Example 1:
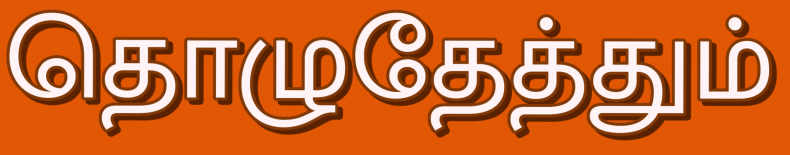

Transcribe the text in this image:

தொழுதேத்தும்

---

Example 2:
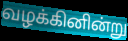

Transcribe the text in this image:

வழக்கினின்று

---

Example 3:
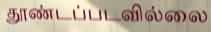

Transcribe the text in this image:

தூண்டப்படவில்லை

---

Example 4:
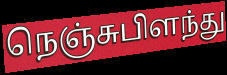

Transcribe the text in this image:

நெஞ்சுபிளந்து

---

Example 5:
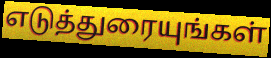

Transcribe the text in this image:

எடுத்துரையுங்கள்